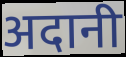
अदानी